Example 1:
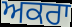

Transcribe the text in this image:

ਅਕਰਾ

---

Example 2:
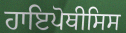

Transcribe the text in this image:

ਹਾਇਪੋਥੀਸਿਸ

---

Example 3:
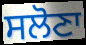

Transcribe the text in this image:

ਸਲੋਣਾ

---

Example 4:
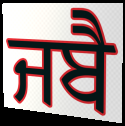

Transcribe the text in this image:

ਜਬੈ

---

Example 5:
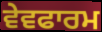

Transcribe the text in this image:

ਵੇਵਫਾਰਮ